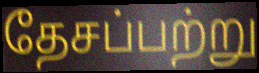
தேசப்பற்று